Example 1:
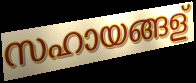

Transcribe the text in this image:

സഹായങ്ങള്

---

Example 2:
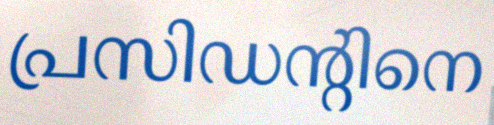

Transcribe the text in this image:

പ്രസിഡന്റിനെ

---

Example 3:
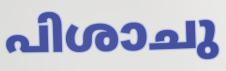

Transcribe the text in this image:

പിശാചു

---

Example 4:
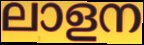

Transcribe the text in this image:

ലാളന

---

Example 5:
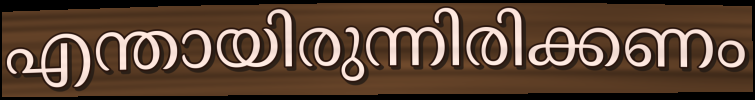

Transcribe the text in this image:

എന്തായിരുന്നിരിക്കണം